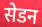
सेडन